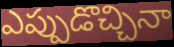
ఎప్పుడొచ్చినా